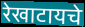
रेखाटायचे